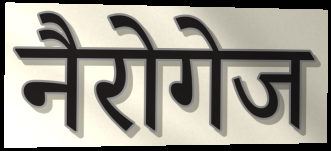
नैरोगेज